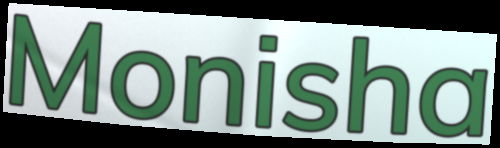
Monisha